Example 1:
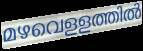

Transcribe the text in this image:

മഴവെളളത്തിൽ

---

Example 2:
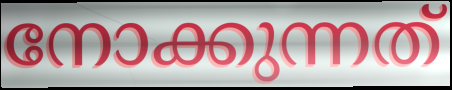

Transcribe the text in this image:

നോക്കുന്നത്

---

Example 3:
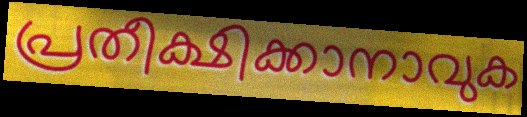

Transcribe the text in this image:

പ്രതീക്ഷിക്കാനാവുക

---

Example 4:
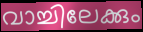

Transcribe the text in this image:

വാച്ചിലേക്കും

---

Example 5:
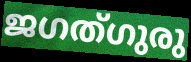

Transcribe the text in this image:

ജഗത്ഗുരു